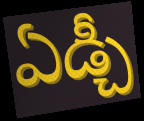
ఏడ్చీ